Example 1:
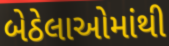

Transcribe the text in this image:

બેઠેલાઓમાંથી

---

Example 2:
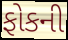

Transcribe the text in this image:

ફોકની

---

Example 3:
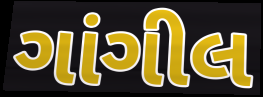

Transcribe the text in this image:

ગાંગીલ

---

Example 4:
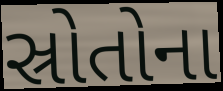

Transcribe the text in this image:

સ્રોતોના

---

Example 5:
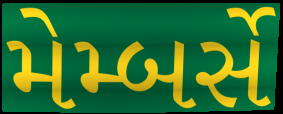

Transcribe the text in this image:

મેમ્બર્સે